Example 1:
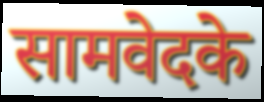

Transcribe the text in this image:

सामवेदके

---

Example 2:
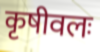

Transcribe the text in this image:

कृषीवलः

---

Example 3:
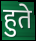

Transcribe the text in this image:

हुते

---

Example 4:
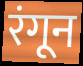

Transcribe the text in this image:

रंगून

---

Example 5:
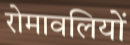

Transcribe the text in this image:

रोमावलियों